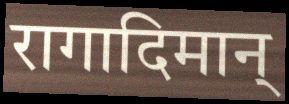
रागादिमान्